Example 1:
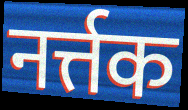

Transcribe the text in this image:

नर्त्तक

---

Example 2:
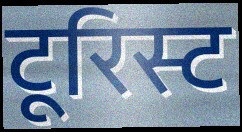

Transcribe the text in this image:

टूरिस्ट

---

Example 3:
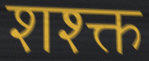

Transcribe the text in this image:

शश्क्त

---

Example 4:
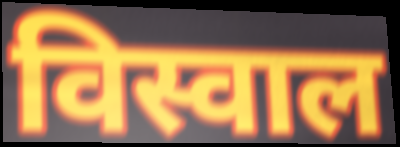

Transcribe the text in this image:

विस्वाल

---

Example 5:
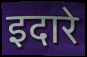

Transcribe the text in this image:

इदारे